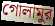
গোলামুর